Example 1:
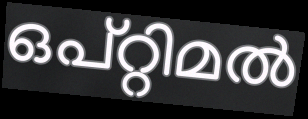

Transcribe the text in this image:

ഒപ്റ്റിമൽ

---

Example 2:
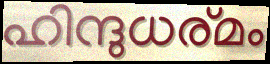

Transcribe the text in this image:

ഹിന്ദുധര്മം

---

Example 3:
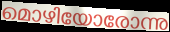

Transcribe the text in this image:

മൊഴിയോരോന്നു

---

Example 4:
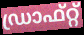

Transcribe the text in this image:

ഡ്രാഫ്റ്റ്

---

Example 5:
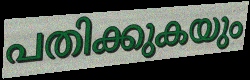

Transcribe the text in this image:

പതിക്കുകയും